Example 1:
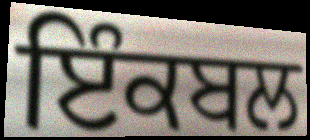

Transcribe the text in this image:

ਇੰਕਬਲ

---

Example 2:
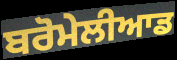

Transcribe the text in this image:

ਬਰੋਮੇਲੀਆਡ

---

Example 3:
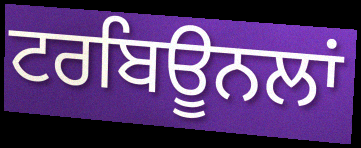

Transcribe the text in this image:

ਟਰਬਿਊਨਲਾਂ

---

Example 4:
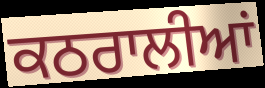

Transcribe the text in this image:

ਕਠਰਾਲੀਆਂ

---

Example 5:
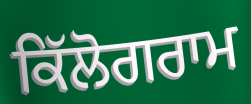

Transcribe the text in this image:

ਕਿੱਲੋਗਰਾਮ